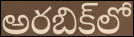
అరబిక్‌లో